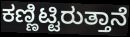
ಕಣ್ಣಿಟ್ಟಿರುತ್ತಾನೆ